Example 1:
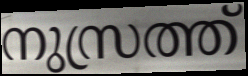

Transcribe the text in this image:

നുസ്രത്ത്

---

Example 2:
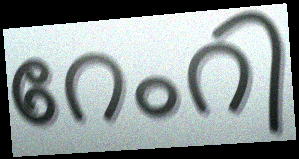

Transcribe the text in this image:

റേംറി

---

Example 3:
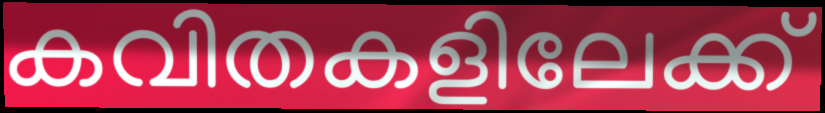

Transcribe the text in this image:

കവിതകളിലേക്ക്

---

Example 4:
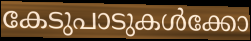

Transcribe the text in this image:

കേടുപാടുകൾക്കോ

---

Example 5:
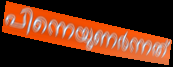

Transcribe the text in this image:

പിന്നെയുണർന്നത്